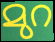
മുറ